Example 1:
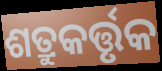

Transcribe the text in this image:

ଶତ୍ରୁକର୍ତ୍ତୃକ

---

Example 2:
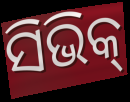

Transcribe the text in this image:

ସିଭିକ୍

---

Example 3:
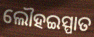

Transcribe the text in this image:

ଲୌହଇସ୍ପାତ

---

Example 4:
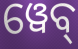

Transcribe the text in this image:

ୱେବ୍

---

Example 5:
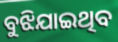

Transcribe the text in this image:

ବୁଝିଯାଇଥିବ